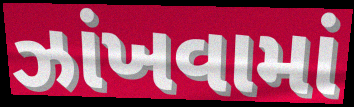
ઝાંખવામાં